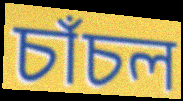
চাঁচল